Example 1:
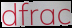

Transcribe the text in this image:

dfrac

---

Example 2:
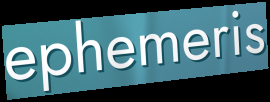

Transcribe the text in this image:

ephemeris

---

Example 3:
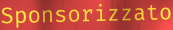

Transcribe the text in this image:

Sponsorizzato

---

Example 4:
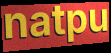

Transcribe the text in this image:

natpu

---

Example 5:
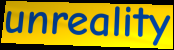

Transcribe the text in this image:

unreality